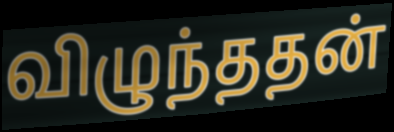
விழுந்ததன்